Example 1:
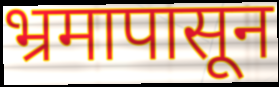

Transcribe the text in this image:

भ्रमापासून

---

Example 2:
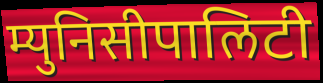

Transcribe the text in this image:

म्युनिसीपालिटी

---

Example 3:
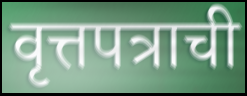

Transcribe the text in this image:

वृत्तपत्राची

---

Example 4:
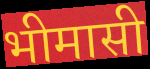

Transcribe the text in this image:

भीमासी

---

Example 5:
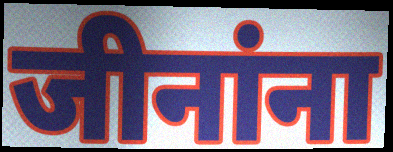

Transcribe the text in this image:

जीनांना